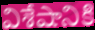
విశేషానికి